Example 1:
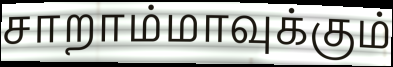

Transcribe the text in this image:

சாறாம்மாவுக்கும்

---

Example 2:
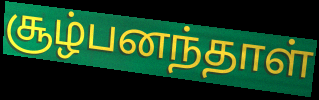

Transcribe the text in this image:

சூழ்பனந்தாள்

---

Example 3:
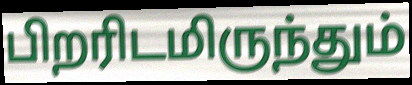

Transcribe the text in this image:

பிறரிடமிருந்தும்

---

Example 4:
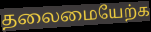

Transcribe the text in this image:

தலைமையேற்க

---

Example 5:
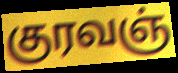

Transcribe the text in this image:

குரவஞ்